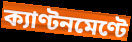
ক্যাণ্টনমেণ্টে